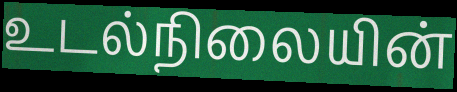
உடல்நிலையின்